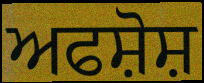
ਅਫਸ਼ੋਸ਼